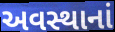
અવસ્થાનાં